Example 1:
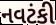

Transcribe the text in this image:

નવટંકી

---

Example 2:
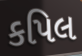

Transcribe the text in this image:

કપિલ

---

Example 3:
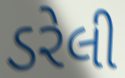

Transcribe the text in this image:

ડરેલી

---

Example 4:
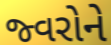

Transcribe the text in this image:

જ્વરોને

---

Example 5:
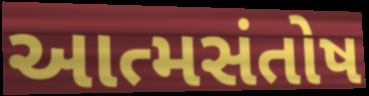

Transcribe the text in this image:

આત્મસંતોષ